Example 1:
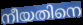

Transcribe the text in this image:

നീയതിനെ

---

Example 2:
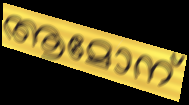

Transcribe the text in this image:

ആമോന്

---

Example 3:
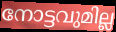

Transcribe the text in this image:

നോട്ടവുമില്ല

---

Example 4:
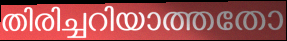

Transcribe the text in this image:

തിരിച്ചറിയാത്തതോ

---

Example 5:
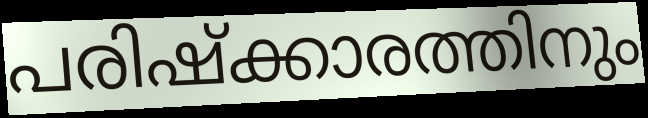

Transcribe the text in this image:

പരിഷ്ക്കാരത്തിനും